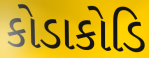
કોડાકોડિ